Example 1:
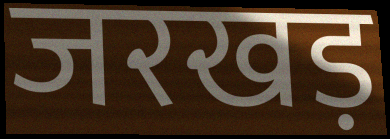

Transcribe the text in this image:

जरखड़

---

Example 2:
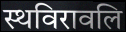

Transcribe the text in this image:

स्थविरावलि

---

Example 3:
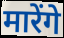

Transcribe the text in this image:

मारेंगे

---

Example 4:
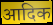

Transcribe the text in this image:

आदिक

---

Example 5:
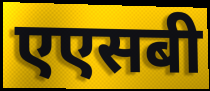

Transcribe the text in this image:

एएसबी